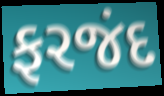
ફરજંદ